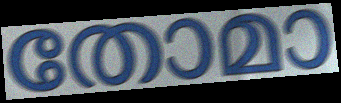
തോമാ